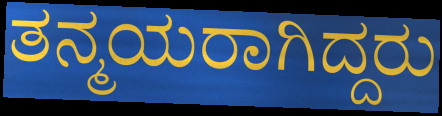
ತನ್ಮಯರಾಗಿದ್ದರು